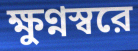
ক্ষুণ্নস্বরে